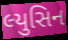
લ્યુસિન